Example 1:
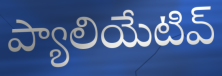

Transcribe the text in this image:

ప్యాలియేటివ్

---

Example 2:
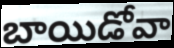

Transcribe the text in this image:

బాయిడోవా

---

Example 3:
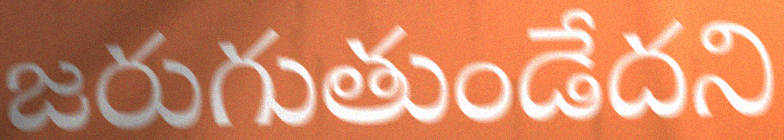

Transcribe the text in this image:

జరుగుతుండేదని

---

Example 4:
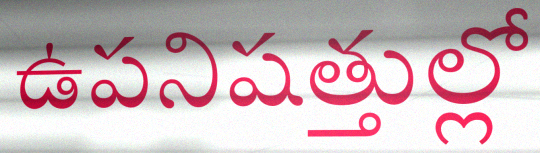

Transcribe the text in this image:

ఉపనిషత్తుల్లో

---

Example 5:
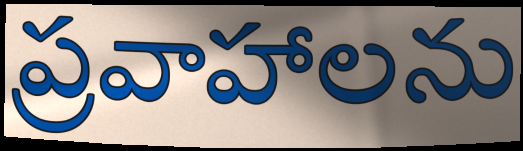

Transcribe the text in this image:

ప్రవాహాలను